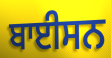
ਬਾਈਸਨ